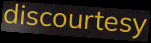
discourtesy